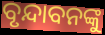
ବୃନ୍ଦାବନଙ୍କୁ